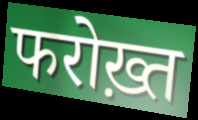
फरोख़्त